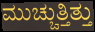
ಮುಚ್ಚುತ್ತಿತ್ತು